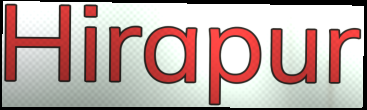
Hirapur